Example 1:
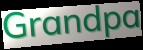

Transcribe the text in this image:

Grandpa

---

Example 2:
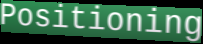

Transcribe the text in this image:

Positioning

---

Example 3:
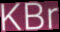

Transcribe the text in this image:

KBr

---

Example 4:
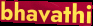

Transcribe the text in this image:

bhavathi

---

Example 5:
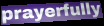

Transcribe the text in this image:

prayerfully